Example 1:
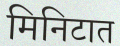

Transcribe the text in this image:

मिनिटात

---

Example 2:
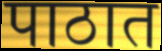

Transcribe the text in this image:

पाठात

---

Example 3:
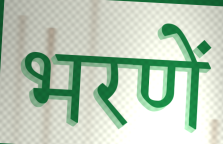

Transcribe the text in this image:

भरणें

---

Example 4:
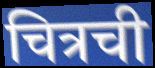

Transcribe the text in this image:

चित्रची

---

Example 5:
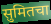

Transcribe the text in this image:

सुमितचा